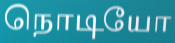
நொடியோ